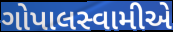
ગોપાલસ્વામીએ